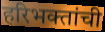
हरिभक्तांची